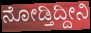
ನೋಡ್ತಿದ್ದೀನಿ